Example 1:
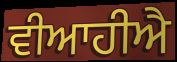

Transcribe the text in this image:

ਵੀਆਹੀਐ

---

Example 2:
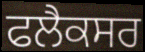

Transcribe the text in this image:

ਫਲੈਕਸਰ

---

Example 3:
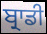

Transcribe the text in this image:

ਬ੍ਰਾਡੀ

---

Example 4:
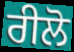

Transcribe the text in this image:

ਰੀਲੋ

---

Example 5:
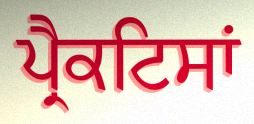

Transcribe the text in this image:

ਪ੍ਰੈਕਟਿਸਾਂ